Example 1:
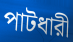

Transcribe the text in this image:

পাটধারী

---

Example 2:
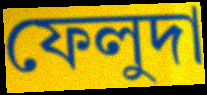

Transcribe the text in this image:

ফেলুদা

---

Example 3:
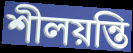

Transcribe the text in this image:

শীলয়ন্তি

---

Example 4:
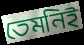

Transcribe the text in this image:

তেমনিই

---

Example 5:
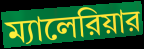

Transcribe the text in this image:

ম্যালেরিয়ার